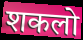
शकलो